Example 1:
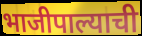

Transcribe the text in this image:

भाजीपाल्याची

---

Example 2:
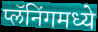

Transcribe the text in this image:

प्लॅनिंगमध्ये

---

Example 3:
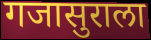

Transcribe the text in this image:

गजासुराला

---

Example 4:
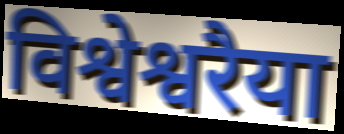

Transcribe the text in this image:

विश्वेश्वरैया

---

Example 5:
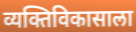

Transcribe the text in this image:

व्यक्तिविकासाला